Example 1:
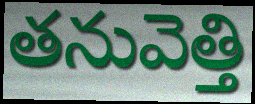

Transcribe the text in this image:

తనువెత్తి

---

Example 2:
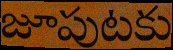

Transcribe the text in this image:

జూపుటకు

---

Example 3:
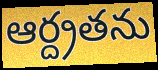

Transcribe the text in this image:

ఆర్ద్రతను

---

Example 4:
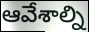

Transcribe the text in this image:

ఆవేశాల్ని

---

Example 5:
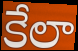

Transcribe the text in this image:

కేలా